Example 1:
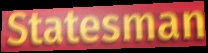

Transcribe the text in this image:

Statesman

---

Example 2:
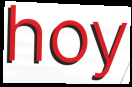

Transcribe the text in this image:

hoy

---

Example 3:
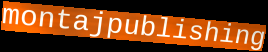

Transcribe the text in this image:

montajpublishing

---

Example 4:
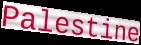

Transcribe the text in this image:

Palestine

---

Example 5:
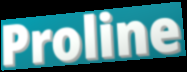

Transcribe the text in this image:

Proline